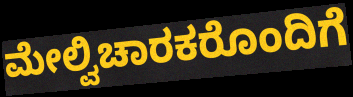
ಮೇಲ್ವಿಚಾರಕರೊಂದಿಗೆ